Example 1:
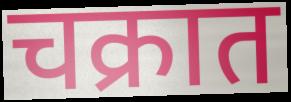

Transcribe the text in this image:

चक्रात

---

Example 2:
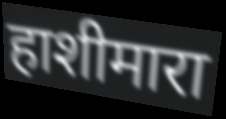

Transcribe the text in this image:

हाशीमारा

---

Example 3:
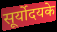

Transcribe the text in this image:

सूर्योदयके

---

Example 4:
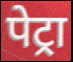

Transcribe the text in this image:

पेट्रा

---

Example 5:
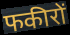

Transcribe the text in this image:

फकीरों